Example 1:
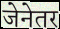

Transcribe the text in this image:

जेनेतर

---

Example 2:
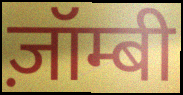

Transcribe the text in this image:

ज़ॉम्बी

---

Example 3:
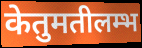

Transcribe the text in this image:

केतुमतीलम्भ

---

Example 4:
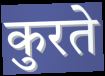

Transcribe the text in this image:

कुरते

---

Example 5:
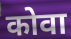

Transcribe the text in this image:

कोवा